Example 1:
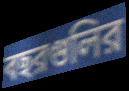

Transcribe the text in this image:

বছরগুলির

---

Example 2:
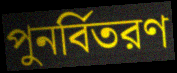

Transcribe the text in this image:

পুনর্বিতরণ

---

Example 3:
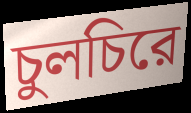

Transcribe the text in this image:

চুলচিরে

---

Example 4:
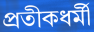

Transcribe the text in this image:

প্রতীকধর্মী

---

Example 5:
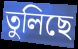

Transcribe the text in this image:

তুলিছে